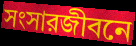
সংসারজীবনে